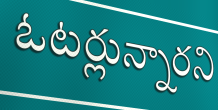
ఓటర్లున్నారని